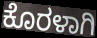
ಕೊರಳಾಗಿ